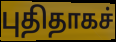
புதிதாகச்